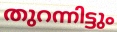
തുറന്നിട്ടും